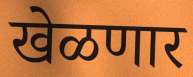
खेळणार